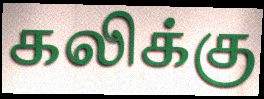
கலிக்கு